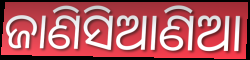
ଜାଣିସିଆଣିଆ